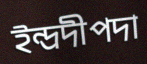
ইন্দ্রদীপদা